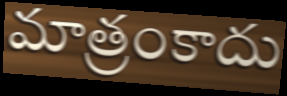
మాత్రంకాదు